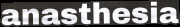
anasthesia